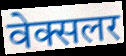
वेक्सलर